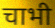
चाभी